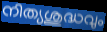
നിത്യശുദ്ധവും